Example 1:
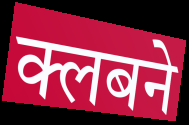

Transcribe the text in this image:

क्लबने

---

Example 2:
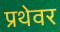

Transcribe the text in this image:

प्रथेवर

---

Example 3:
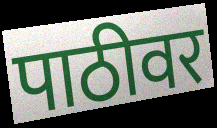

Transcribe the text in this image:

पाठीवर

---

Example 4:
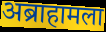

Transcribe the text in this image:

अब्राहामला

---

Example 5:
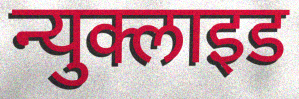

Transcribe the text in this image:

न्युक्लाइड